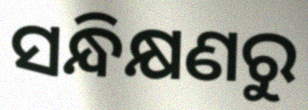
ସନ୍ଧିକ୍ଷଣରୁ